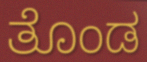
ತೊಂಡ